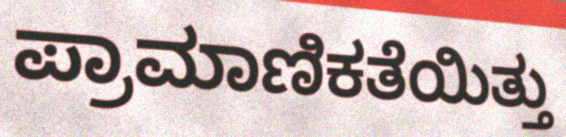
ಪ್ರಾಮಾಣಿಕತೆಯಿತ್ತು